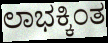
ಲಾಭಕ್ಕಿಂತ